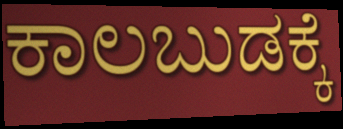
ಕಾಲಬುಡಕ್ಕೆ